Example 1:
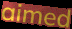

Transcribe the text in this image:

aimed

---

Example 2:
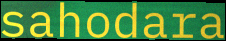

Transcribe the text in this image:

sahodara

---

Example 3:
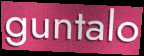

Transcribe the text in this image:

guntalo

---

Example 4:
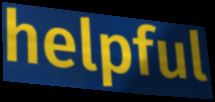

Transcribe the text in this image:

helpful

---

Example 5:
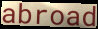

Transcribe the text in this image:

abroad